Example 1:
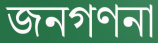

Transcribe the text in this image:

জনগণনা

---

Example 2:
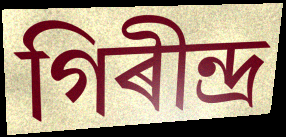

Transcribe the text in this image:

গিৰীন্দ্ৰ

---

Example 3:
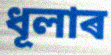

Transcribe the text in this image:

ধূলাৰ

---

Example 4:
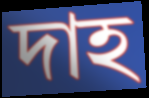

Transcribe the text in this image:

দাহ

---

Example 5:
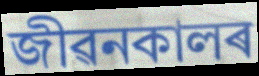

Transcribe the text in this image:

জীৱনকালৰ